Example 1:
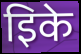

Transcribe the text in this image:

इिके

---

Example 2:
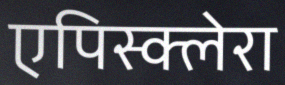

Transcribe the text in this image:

एपिस्क्लेरा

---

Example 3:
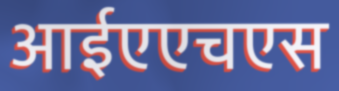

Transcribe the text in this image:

आईएएचएस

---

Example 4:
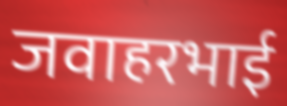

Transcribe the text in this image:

जवाहरभाई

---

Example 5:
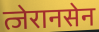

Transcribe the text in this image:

त्जेरानसेन